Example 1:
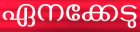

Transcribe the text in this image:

ഏനക്കേടു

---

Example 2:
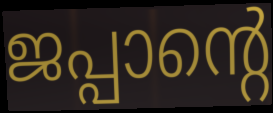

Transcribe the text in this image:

ജപ്പാന്റെ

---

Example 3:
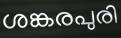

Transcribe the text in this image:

ശങ്കരപുരി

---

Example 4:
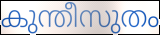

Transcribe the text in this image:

കുന്തീസുതം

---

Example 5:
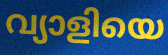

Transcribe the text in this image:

വ്യാളിയെ